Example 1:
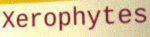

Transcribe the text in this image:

Xerophytes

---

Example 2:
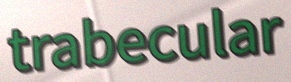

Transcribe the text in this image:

trabecular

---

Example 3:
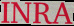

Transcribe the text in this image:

INRA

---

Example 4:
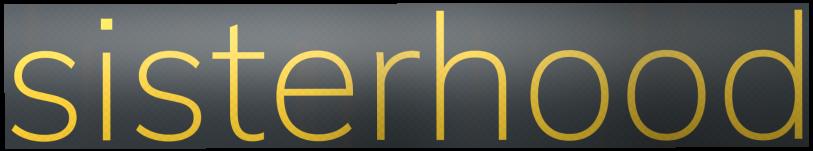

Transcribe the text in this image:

sisterhood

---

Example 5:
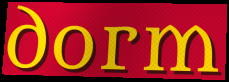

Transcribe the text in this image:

dorm